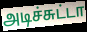
அடிச்சுட்டா